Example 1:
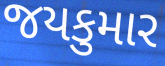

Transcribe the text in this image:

જયકુમાર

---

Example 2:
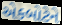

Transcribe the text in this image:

એકબોટેને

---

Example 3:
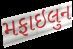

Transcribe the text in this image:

મફાઇલુન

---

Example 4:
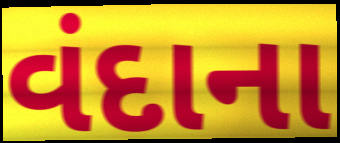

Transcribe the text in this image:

વંદાના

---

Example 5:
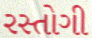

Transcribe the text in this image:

રસ્તોગી